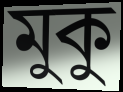
মুকু